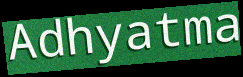
Adhyatma